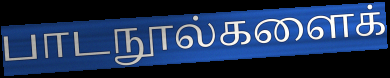
பாடநூல்களைக்